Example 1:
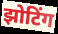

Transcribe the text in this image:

झोटिंग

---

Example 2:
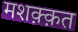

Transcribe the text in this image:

मशक़्क़त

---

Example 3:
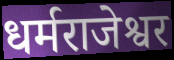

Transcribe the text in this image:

धर्मराजेश्वर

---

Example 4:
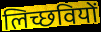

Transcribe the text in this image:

लिच्छवियों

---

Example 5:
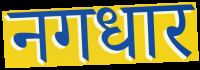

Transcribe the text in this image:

नगधार